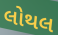
લોથલ